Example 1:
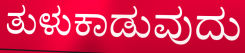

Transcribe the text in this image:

ತುಳುಕಾಡುವುದು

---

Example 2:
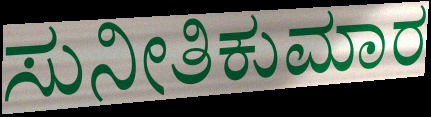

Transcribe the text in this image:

ಸುನೀತಿಕುಮಾರ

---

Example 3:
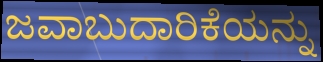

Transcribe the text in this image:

ಜವಾಬುದಾರಿಕೆಯನ್ನು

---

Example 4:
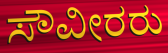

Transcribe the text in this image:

ಸೌವೀರರು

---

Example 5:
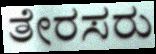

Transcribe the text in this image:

ತೇರಸರು